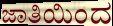
ಜಾತಿಯಿಂದ